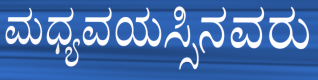
ಮಧ್ಯವಯಸ್ಸಿನವರು